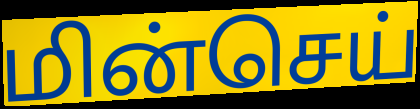
மின்செய்